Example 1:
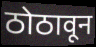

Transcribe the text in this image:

ठोठावून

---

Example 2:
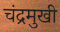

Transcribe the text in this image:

चंद्रमुखी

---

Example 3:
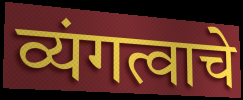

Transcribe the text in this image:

व्यंगत्वाचे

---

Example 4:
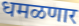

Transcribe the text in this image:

धमळणार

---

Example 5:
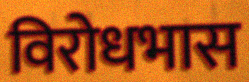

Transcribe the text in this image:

विरोधभास